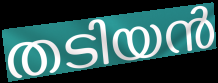
തടിയൻ